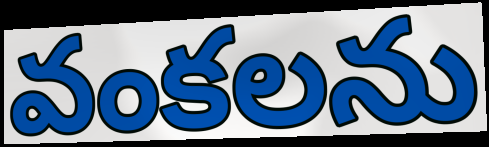
వంకలను